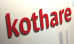
kothare